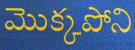
మొక్కపోని